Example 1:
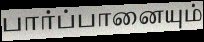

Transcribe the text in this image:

பார்ப்பானையும்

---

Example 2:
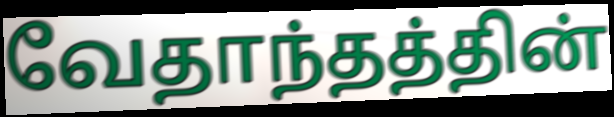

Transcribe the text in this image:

வேதாந்தத்தின்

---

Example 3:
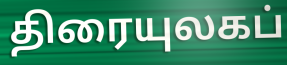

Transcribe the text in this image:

திரையுலகப்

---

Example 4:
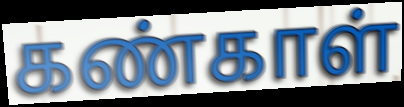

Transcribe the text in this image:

கண்காள்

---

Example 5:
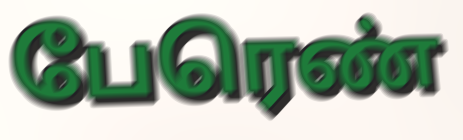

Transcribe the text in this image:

பேரெண்